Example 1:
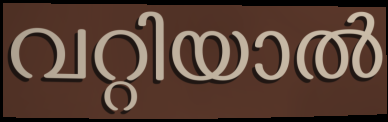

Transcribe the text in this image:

വറ്റിയാൽ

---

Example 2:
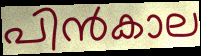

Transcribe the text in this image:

പിൻകാല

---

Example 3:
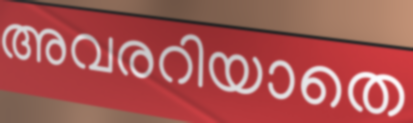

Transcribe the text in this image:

അവരറിയാതെ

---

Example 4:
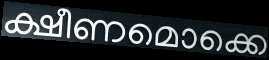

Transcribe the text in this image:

ക്ഷീണമൊക്കെ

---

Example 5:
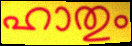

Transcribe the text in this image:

ഹാതും